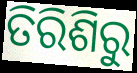
ତିରିଶିରୁ